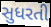
સુધરતી